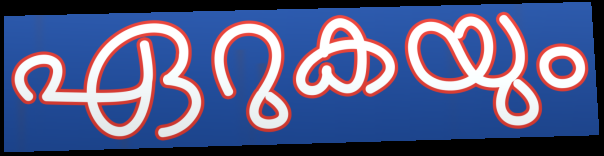
ഏറുകയും